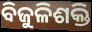
ବିଜୁଳିଶକ୍ତି